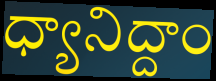
ధ్యానిద్దాం